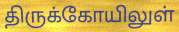
திருக்கோயிலுள்